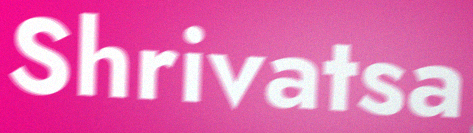
Shrivatsa